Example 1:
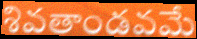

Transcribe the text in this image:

శివతాండవమే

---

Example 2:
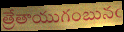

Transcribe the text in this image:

త్రేతాయుగంబునఁ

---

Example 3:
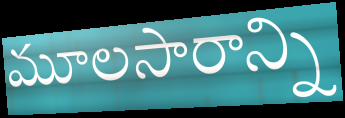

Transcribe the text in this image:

మూలసారాన్ని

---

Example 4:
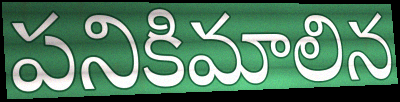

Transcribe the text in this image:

పనికిమాలిన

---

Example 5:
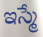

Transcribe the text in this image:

ఇస్మే